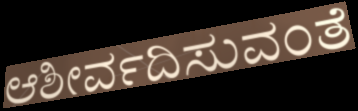
ಆಶೀರ್ವದಿಸುವಂತೆ